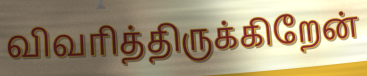
விவரித்திருக்கிறேன்